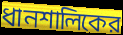
ধানশালিকের